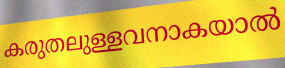
കരുതലുള്ളവനാകയാൽ